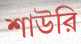
শাউরি